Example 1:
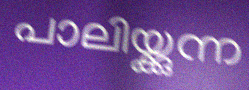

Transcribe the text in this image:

പാലിയ്ക്കുന്ന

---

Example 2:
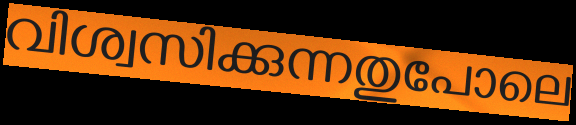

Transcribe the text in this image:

വിശ്വസിക്കുന്നതുപോലെ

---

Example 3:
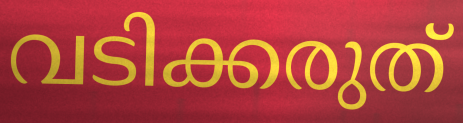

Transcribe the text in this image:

വടിക്കരുത്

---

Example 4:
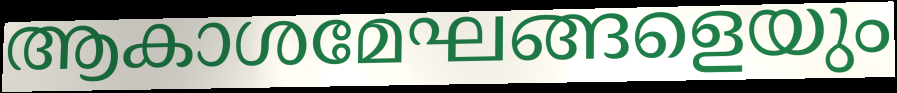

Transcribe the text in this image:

ആകാശമേഘങ്ങളെയും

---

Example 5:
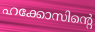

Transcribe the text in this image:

ഹക്കോസിന്റെ